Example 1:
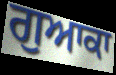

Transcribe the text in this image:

ਗੁਆਕਾ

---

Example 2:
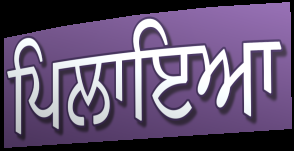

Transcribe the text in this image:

ਪਿਲਾਇਆ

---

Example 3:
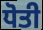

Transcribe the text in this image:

ਧੋਤੀ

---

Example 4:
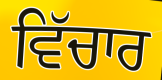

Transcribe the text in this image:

ਵਿੱਚਾਰ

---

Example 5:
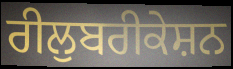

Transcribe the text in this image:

ਰੀਲੁਬਰੀਕੇਸ਼ਨ